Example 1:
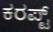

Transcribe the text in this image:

ಕರಪ್ಟ್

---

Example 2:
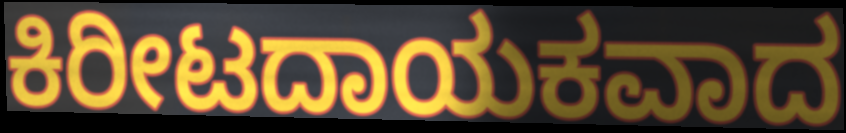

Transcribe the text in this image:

ಕಿರೀಟದಾಯಕವಾದ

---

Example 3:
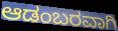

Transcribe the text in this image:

ಆಡಂಬರವಾಗಿ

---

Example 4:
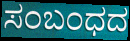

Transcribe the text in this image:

ಸಂಬಂಧದ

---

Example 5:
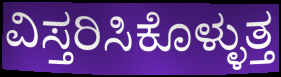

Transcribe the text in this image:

ವಿಸ್ತರಿಸಿಕೊಳ್ಳುತ್ತ